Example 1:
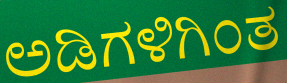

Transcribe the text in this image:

ಅಡಿಗಳಿಗಿಂತ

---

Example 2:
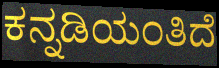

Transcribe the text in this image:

ಕನ್ನಡಿಯಂತಿದೆ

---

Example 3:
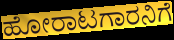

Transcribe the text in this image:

ಹೋರಾಟಗಾರನಿಗೆ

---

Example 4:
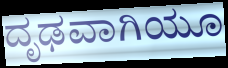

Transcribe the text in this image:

ದೃಢವಾಗಿಯೂ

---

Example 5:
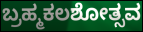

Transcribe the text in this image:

ಬ್ರಹ್ಮಕಲಶೋತ್ಸವ